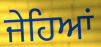
ਜੇਹਿਆਂ